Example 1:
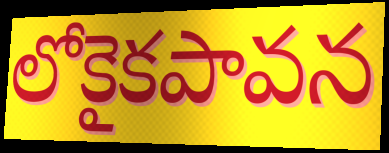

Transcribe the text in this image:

లోకైకపావన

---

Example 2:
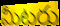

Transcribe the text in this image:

మీటరు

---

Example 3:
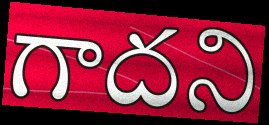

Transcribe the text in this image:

గాదని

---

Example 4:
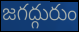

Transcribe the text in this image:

జగద్గురుం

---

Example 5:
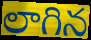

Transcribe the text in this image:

లాగిన